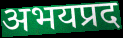
अभयप्रद